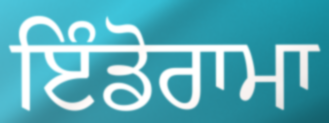
ਇੰਡੋਰਾਮਾ